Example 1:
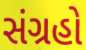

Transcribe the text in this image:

સંગ્રહો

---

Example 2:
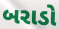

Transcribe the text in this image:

બરાડો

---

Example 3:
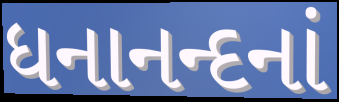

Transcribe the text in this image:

ધનાનન્દનાં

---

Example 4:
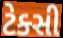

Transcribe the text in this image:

ટેક્સી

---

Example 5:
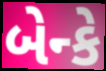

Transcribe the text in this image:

બેન્કે